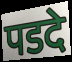
पडदे